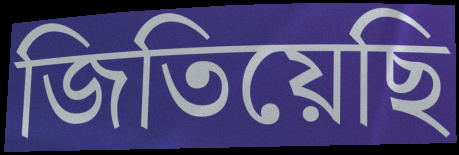
জিতিয়েছি